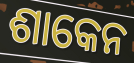
ଶାକେନ